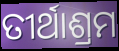
ତୀର୍ଥାଶ୍ରମ